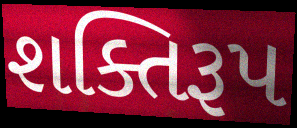
શક્તિરૂપ